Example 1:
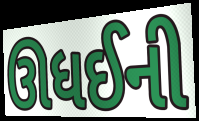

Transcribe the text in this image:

ઊધઈની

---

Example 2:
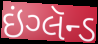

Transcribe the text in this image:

ઇંગ્લૅન્ડ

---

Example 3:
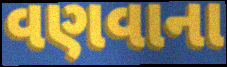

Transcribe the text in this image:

વણવાના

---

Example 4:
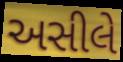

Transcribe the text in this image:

અસીલે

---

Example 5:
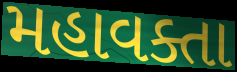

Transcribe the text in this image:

મહાવક્તા